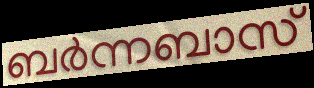
ബർന്നബാസ്